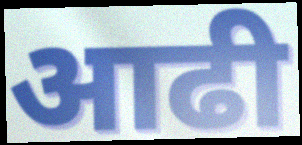
आढी